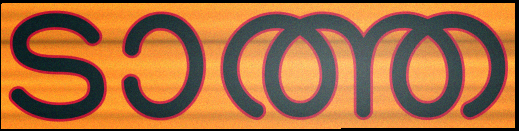
ടാത്ത